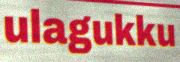
ulagukku